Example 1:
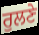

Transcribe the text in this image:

ਰੁਲਣੇ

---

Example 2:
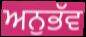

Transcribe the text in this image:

ਅਨੁਭੱਵ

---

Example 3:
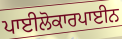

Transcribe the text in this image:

ਪਾਈਲੋਕਾਰਪਾਈਨ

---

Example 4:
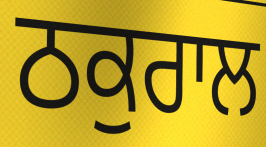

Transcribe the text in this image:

ਠਕੁਰਾਲ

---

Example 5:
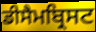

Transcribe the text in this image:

ਡੀਸੈਮਬ੍ਰਿਸਟ